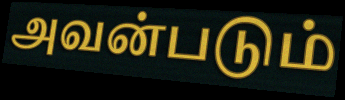
அவன்படும்